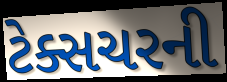
ટેક્સચરની